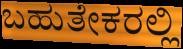
ಬಹುತೇಕರಲ್ಲಿ